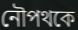
নৌপথকে